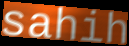
sahih